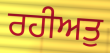
ਰਹੀਅਤੁ